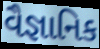
વૈજ્ઞાનિક